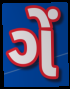
ગેં